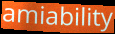
amiability